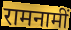
रामनामीं